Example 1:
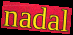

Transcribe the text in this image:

nadal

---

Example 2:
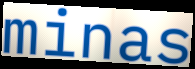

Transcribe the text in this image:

minas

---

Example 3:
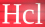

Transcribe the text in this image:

Hcl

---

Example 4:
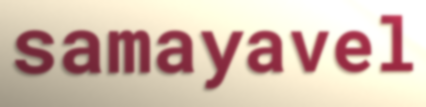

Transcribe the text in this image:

samayavel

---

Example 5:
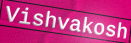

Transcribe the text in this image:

Vishvakosh